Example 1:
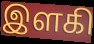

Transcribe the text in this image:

இளகி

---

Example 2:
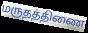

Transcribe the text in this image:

மருதத்திணை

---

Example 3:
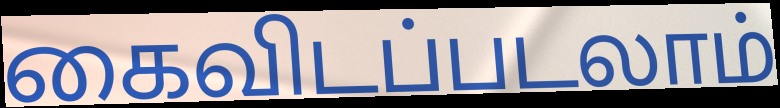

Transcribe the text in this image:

கைவிடப்படலாம்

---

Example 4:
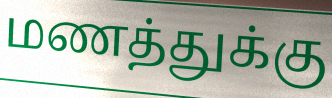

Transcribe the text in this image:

மணத்துக்கு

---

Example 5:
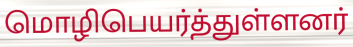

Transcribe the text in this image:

மொழிபெயர்த்துள்ளனர்